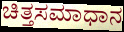
ಚಿತ್ತಸಮಾಧಾನ